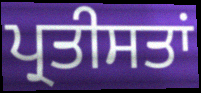
ਪ੍ਰਤੀਸਤਾਂ